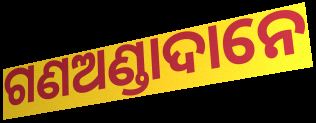
ଗଣଅଣ୍ଡାଦାନେ